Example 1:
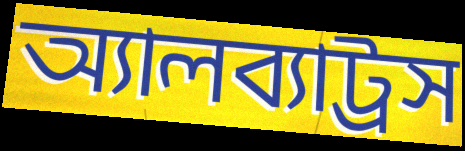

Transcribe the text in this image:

অ্যালব্যাট্রস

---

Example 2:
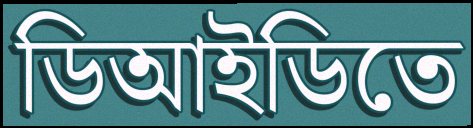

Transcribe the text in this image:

ডিআইডিতে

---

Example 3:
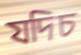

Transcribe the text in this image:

যদিচ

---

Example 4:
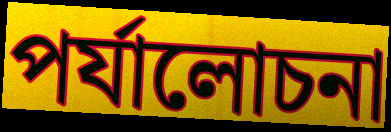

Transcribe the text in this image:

পর্যালোচনা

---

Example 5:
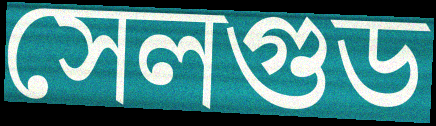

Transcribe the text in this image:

সেলগুড